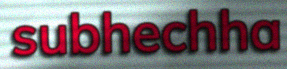
subhechha